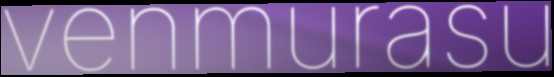
venmurasu